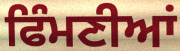
ਫਿੰਮਣੀਆਂ